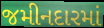
જમીનદારમાં